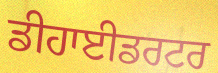
ਡੀਹਾਈਡਰਟਰ